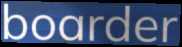
boarder